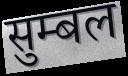
सुम्बल